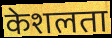
केशलता